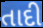
તાદી